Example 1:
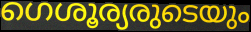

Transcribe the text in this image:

ഗെശൂര്യരുടെയും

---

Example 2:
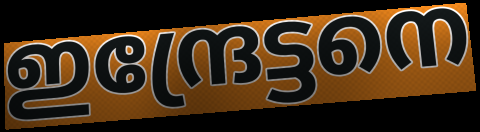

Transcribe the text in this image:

ഇന്ദ്രേട്ടനെ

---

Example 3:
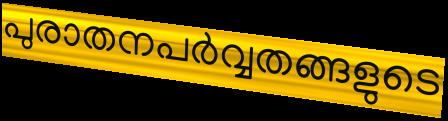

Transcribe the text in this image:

പുരാതനപർവ്വതങ്ങളുടെ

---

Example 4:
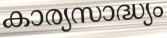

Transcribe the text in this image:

കാര്യസാദ്ധ്യം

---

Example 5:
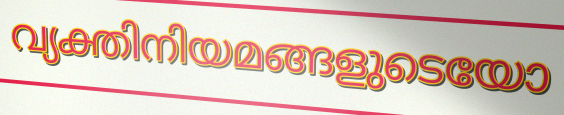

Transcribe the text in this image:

വ്യക്തിനിയമങ്ങളുടെയോ